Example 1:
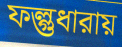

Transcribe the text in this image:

ফল্গুধারায়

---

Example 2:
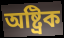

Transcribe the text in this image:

অষ্ট্রিক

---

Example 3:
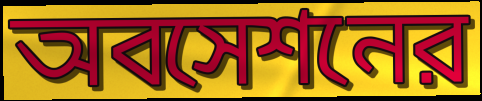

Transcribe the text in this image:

অবসেশনের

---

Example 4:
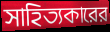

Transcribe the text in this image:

সাহিত্যকারের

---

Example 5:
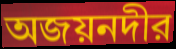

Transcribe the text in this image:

অজয়নদীর